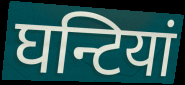
घन्टियां